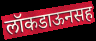
लॉकडाऊनसह